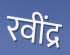
रवींद्र